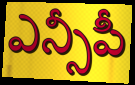
ఎన్సీపీ